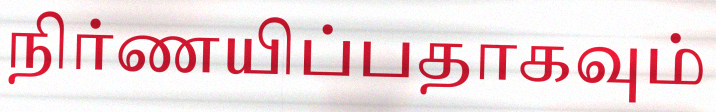
நிர்ணயிப்பதாகவும்